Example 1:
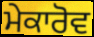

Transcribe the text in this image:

ਮੇਕਾਰੋਵ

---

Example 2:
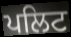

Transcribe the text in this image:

ਪਲਿਟ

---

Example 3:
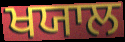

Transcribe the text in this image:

ਖਯਾਲ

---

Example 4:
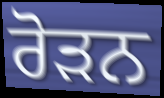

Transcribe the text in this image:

ਰੋੜਨ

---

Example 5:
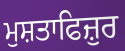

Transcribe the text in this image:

ਮੁਸ਼ਤਾਫਿਜ਼ੁਰ